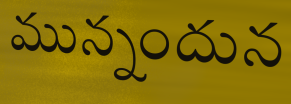
మున్నందున